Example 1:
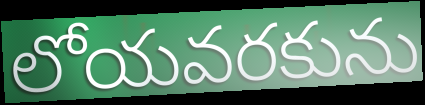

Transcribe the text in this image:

లోయవరకును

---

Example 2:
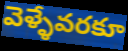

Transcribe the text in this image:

వెళ్ళేవరకూ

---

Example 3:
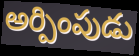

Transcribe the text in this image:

అర్పింపుడు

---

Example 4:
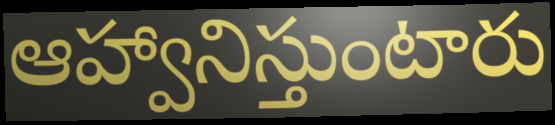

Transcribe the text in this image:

ఆహ్వానిస్తుంటారు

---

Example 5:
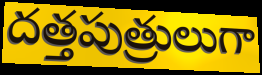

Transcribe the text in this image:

దత్తపుత్రులుగా